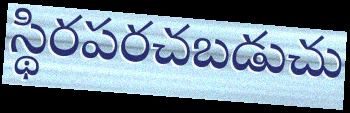
స్థిరపరచబడుచు